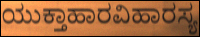
ಯುಕ್ತಾಹಾರವಿಹಾರಸ್ಯ